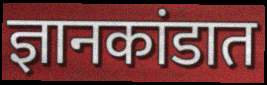
ज्ञानकांडात